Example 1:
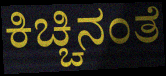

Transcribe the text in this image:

ಕಿಚ್ಚಿನಂತೆ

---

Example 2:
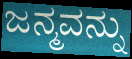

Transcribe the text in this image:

ಜನ್ಮವನ್ನು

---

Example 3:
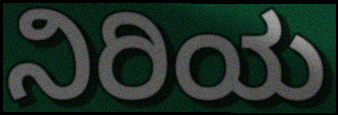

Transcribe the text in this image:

ನಿರಿಯ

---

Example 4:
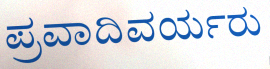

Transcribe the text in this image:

ಪ್ರವಾದಿವರ್ಯರು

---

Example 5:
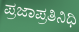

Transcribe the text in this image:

ಪ್ರಜಾಪ್ರತಿನಿಧಿ